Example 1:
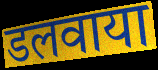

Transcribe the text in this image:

डलवाया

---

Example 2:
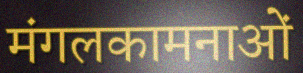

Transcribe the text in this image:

मंगलकामनाओं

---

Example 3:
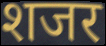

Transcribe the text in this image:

शजर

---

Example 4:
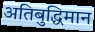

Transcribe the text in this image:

अतिबुद्धिमान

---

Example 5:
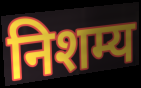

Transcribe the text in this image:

निशम्य